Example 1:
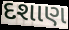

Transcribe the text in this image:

દશાણ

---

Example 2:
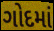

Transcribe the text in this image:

ગોદમાં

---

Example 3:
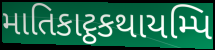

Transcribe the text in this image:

માતિકાટ્ઠકથાયમ્પિ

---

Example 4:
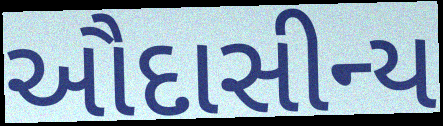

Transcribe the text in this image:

ઔદાસીન્ય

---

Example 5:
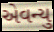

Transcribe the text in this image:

એવન્યુ